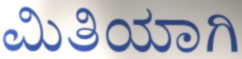
ಮಿತಿಯಾಗಿ